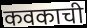
कवकाची